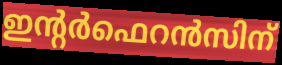
ഇന്റർഫെറൻസിന്